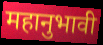
महानुभावी